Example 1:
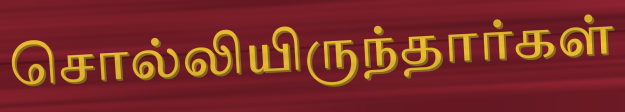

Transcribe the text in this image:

சொல்லியிருந்தார்கள்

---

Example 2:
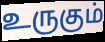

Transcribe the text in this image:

உருகும்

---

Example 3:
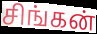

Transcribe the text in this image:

சிங்கன்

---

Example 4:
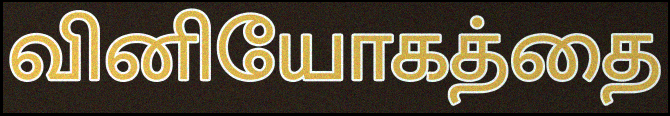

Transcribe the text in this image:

வினியோகத்தை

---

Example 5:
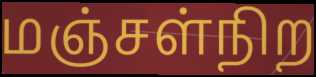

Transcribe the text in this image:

மஞ்சள்நிற